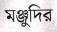
মঞ্জুদির